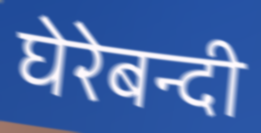
घेरेबन्दी